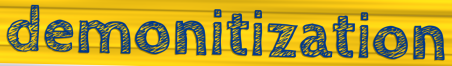
demonitization